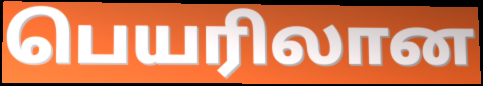
பெயரிலான